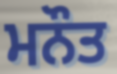
ਮਨੌਤ